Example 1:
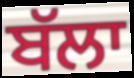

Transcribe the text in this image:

ਬੱਲਾ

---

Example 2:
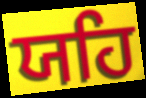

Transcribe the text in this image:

ਯਹਿ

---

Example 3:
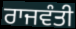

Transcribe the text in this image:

ਰਾਜਵੰਤੀ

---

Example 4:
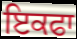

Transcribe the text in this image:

ਇਕਫਾ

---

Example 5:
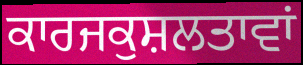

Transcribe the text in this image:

ਕਾਰਜਕੁਸ਼ਲਤਾਵਾਂ